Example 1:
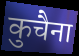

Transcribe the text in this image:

कुचैना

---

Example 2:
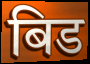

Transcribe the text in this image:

बिड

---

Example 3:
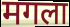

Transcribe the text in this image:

मगला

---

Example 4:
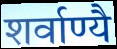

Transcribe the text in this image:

शर्वाण्यै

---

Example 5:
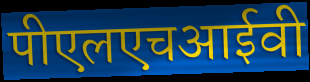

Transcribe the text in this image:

पीएलएचआईवी